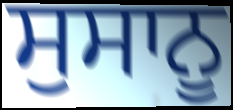
ਸੁਸਾਨੂ